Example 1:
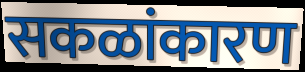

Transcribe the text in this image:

सकळांकारण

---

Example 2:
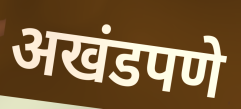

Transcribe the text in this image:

अखंडपणे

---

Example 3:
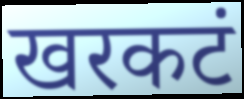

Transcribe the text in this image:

खरकटं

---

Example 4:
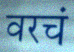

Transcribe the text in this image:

वरचं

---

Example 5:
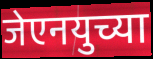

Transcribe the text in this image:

जेएनयुच्या